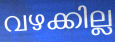
വഴക്കില്ല